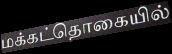
மக்கட்தொகையில்